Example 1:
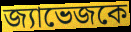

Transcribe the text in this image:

জ্যাভেজকে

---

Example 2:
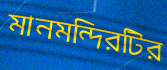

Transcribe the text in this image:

মানমন্দিরটির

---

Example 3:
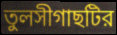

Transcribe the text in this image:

তুলসীগাছটির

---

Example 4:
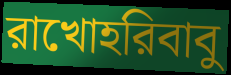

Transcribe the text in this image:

রাখোহরিবাবু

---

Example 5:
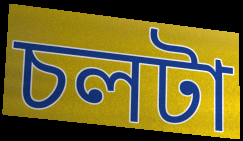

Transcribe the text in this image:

চলটা